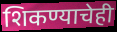
शिकण्याचेही